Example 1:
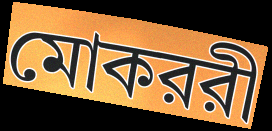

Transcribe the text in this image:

মোকররী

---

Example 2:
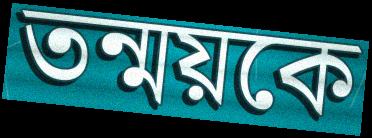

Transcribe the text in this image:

তন্ময়কে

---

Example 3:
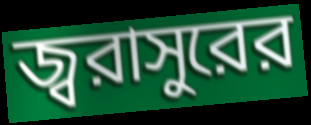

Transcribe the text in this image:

জ্বরাসুরের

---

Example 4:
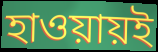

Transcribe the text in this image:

হাওয়ায়ই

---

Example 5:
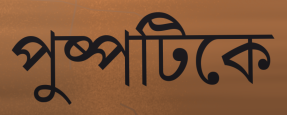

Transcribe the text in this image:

পুষ্পটিকে